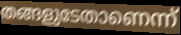
തങ്ങളുടേതാണെന്ന്